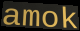
amok